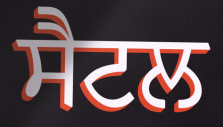
ਸੈਟਲ